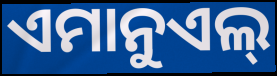
ଏମାନୁଏଲ୍